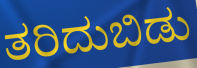
ತರಿದುಬಿಡು